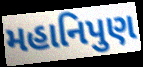
મહાનિપુણ